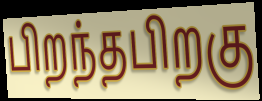
பிறந்தபிறகு